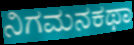
ನಿಗಮನಕಥಾ